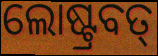
ଲୋଷ୍ଟ୍ରବତ୍